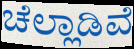
ಚೆಲ್ಲಾಡಿವೆ